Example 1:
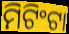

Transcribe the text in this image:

ମିଟିଂଟା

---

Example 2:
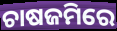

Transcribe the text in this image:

ଚାଷଜମିରେ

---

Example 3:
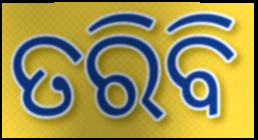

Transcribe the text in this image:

ତରିବି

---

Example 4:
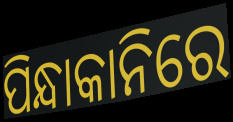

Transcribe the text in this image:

ପିନ୍ଧାକାନିରେ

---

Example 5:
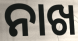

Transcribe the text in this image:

ନାଖ